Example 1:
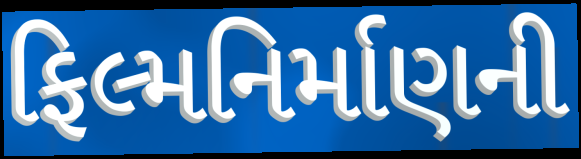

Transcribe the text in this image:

ફિલ્મનિર્માણની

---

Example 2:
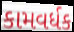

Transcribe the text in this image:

કામવર્ધક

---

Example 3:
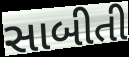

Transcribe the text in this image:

સાબીતી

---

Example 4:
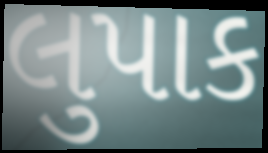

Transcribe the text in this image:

લુપાક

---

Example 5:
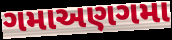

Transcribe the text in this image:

ગમાઅણગમા